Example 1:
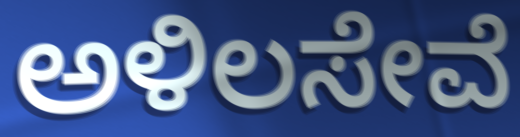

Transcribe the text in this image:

ಅಳಿಲಸೇವೆ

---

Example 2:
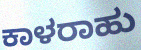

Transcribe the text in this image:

ಕಾಳರಾಹು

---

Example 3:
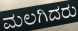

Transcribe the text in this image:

ಮಲಗಿದರು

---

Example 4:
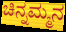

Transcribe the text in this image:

ಚಿನ್ನಮ್ಮನ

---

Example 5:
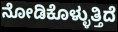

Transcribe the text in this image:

ನೋಡಿಕೊಳ್ಳುತ್ತಿದೆ